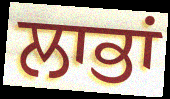
ਲਾਭਾਂ